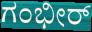
ಗಂಭೀರ್